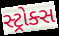
સ્ટ્રોક્સ